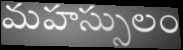
మహస్సులం